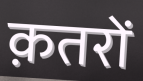
क़तरों